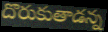
దొరుకుతాడన్న